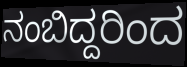
ನಂಬಿದ್ದರಿಂದ